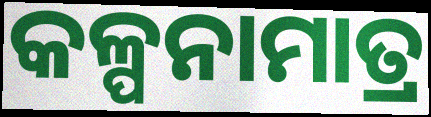
କଳ୍ପନାମାତ୍ର